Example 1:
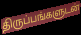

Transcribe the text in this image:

திருப்பங்களுடன்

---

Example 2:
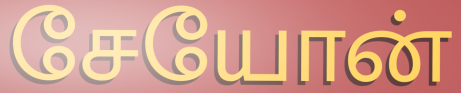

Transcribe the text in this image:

சேயோன்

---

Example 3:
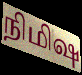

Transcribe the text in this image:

நிமிஷ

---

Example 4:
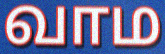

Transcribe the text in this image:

வாம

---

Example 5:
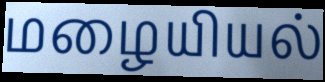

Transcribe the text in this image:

மழையியல்